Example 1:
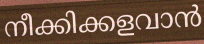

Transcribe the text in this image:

നീക്കിക്കളവാൻ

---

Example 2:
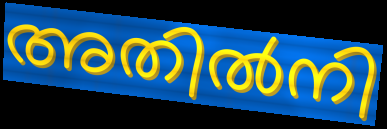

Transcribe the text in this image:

അതിൽനി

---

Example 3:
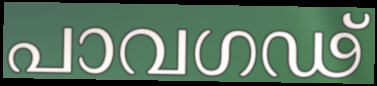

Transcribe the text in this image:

പാവഗഢ്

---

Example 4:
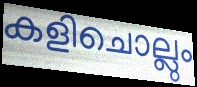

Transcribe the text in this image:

കളിചൊല്ലും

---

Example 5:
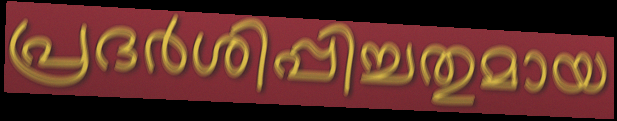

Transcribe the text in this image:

പ്രദർശിപ്പിച്ചതുമായ